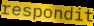
respondit